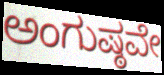
ಅಂಗುಷ್ಠವೇ